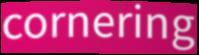
cornering